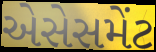
એસેસમેંટ